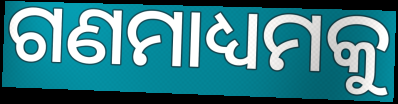
ଗଣମାଧ୍ୟମକୁ